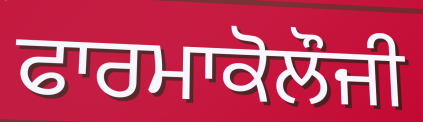
ਫਾਰਮਾਕੋਲੌਜੀ